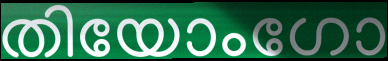
തിയോംഗോ